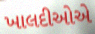
ખાલદીઓએ